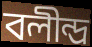
বলীন্দ্ৰ